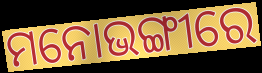
ମନୋଭଙ୍ଗୀରେ